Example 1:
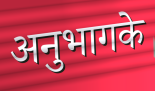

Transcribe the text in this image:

अनुभागके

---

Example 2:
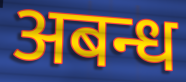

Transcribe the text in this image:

अबन्ध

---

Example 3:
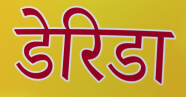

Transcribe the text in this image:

डेरिडा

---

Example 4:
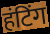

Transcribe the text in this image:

हंटिंग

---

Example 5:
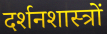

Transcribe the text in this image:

दर्शनशास्त्रों